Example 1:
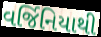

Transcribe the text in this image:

વર્જિનિયાથી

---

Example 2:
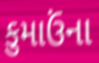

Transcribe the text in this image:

કુમાઉંના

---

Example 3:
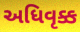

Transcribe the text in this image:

અધિવૃક્ક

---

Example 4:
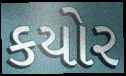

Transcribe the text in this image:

કયોર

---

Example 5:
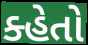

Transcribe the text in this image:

ક્હેતો